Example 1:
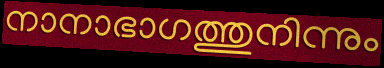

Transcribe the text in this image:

നാനാഭാഗത്തുനിന്നും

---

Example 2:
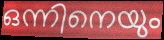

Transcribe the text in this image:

ഒന്നിനെയും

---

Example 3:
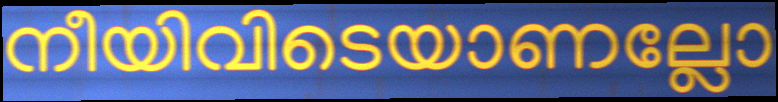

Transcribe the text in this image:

നീയിവിടെയാണല്ലോ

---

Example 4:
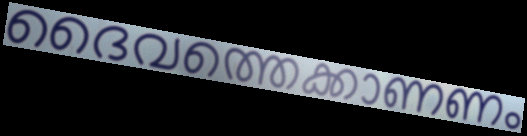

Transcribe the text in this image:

ദൈവത്തെക്കാണണം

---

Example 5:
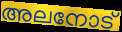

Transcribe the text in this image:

അലനോട്